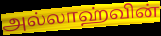
அல்லாஹ்வின்